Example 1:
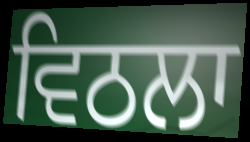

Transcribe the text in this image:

ਵਿਠਲਾ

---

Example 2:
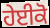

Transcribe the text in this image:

ਹੇਈਕੋ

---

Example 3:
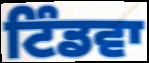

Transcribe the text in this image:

ਟਿੰਡਵਾ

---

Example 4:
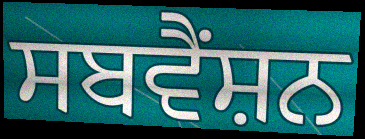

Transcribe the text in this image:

ਸਬਵੈਂਸ਼ਨ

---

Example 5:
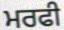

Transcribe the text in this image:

ਮਰਫੀ